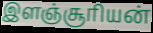
இளஞ்சூரியன்